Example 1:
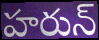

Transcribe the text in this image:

హరున్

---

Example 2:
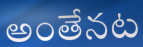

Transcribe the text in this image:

అంతేనట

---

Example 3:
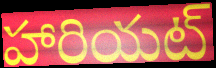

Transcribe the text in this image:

హారియట్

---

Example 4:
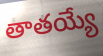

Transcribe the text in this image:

తాతయ్యే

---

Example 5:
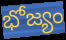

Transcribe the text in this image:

భోజ్యం